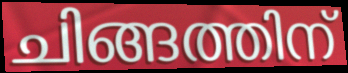
ചിങ്ങത്തിന്